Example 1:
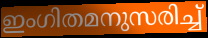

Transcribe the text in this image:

ഇംഗിതമനുസരിച്ച്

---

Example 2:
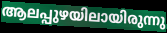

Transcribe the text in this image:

ആലപ്പുഴയിലായിരുന്നു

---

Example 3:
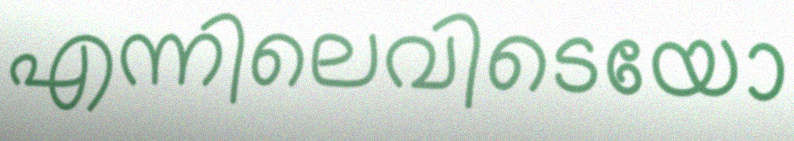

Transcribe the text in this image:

എന്നിലെവിടെയോ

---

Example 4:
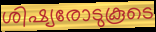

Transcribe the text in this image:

ശിഷ്യരോടുകൂടെ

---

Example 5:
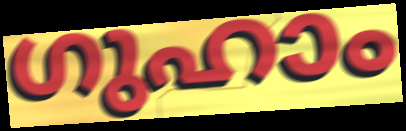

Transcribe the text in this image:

ഗുഹാം